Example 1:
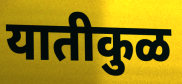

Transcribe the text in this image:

यातीकुळ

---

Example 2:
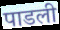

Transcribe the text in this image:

पाडली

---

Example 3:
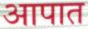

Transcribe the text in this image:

आपात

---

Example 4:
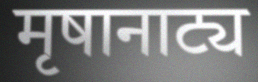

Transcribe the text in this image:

मृषानाट्य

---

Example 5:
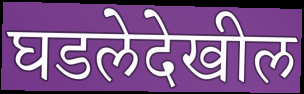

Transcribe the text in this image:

घडलेदेखील